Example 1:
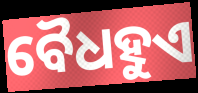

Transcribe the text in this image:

ବୈଧହୁଏ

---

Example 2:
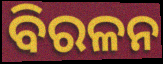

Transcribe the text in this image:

ବିରଳନ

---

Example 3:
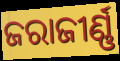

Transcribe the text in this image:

ଜରାଜୀର୍ଣ୍ଣ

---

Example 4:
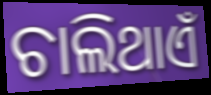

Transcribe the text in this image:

ଚାଲିଥାଏଁ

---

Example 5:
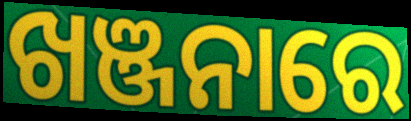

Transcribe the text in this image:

ଖଞ୍ଜନାରେ